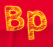
Bp